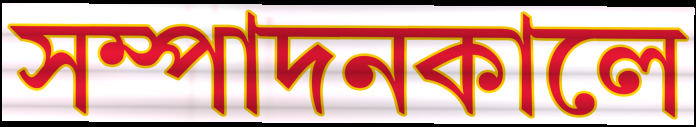
সম্পাদনকালে